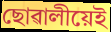
ছোৱালীয়েই